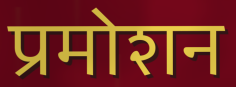
प्रमोशन